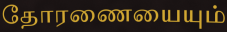
தோரணையையும்